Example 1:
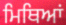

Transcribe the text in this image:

ਮਿਥਿਆਂ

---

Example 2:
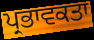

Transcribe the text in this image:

ਪ੍ਰਭਾਵਕਤਾ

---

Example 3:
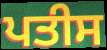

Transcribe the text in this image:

ਪਤੀਸ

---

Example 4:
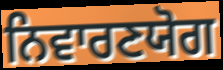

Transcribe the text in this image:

ਨਿਵਾਰਣਯੋਗ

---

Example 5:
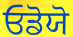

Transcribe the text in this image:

ਓਡੋਯੋ